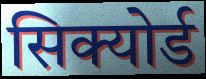
सिक्‍योर्ड